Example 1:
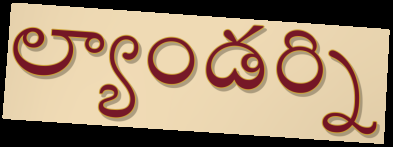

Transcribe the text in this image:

ల్యాండర్ని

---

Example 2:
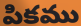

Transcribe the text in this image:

పికము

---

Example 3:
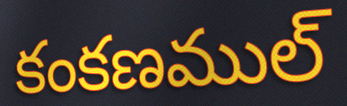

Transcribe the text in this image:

కంకణముల్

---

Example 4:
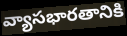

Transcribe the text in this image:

వ్యాసభారతానికి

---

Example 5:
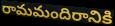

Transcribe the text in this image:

రామమందిరానికి